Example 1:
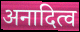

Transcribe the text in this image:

अनादित्व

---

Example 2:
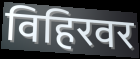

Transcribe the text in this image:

विहिरवर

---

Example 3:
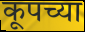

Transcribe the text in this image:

कूपच्या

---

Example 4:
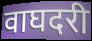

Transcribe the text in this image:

वाघदरी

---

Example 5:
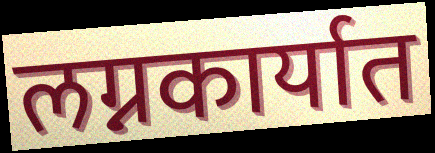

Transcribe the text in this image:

लग्नकार्यात